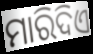
ମାରିଦିଏ